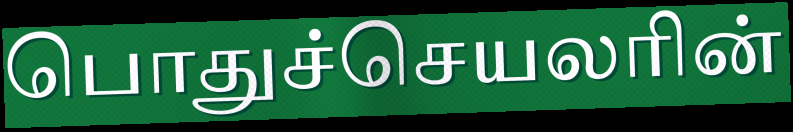
பொதுச்செயலரின்